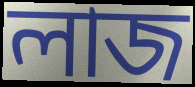
লাজ